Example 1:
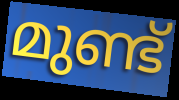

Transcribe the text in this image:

മുണ്ട്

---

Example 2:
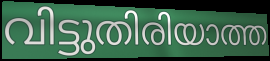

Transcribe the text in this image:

വിട്ടുതിരിയാത്ത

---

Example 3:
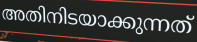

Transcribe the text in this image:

അതിനിടയാക്കുന്നത്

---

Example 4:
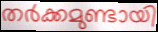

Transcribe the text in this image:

തർക്കമുണ്ടായി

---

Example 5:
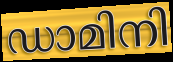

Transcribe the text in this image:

ഡാമിനി